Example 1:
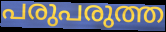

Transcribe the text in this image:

പരുപരുത്ത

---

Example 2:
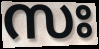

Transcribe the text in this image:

സഃ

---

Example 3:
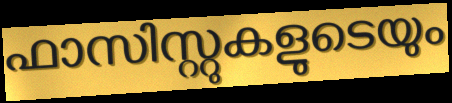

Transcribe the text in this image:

ഫാസിസ്റ്റുകളുടെയും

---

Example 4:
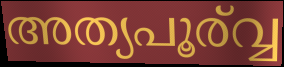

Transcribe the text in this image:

അത്യപൂര്വ്വ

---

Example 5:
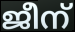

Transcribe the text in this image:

ജീന്